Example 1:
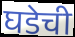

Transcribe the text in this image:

घडेची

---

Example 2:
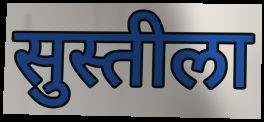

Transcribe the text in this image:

सुस्तीला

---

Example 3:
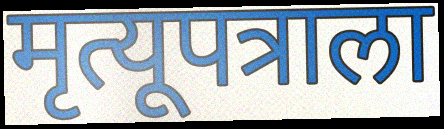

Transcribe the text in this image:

मृत्यूपत्राला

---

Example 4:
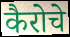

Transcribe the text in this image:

कैरोचे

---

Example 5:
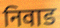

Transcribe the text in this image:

निवाड